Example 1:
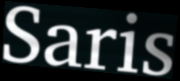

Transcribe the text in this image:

Saris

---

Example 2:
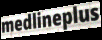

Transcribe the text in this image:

medlineplus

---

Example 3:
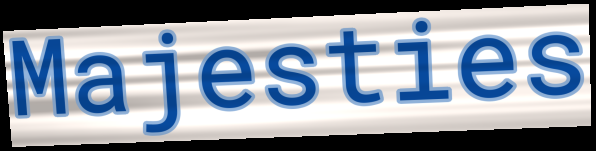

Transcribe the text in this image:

Majesties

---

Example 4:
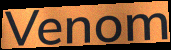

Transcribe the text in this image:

Venom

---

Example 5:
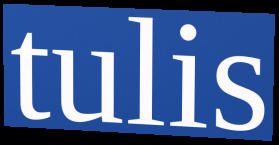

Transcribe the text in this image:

tulis